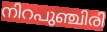
നിറപുഞ്ചിരി